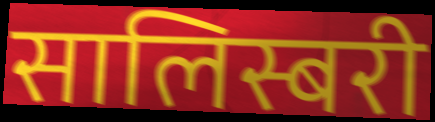
सालिस्बरी